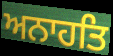
ਅਨਾਹਤਿ